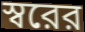
স্বরের